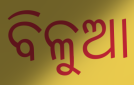
ବିଳୁଆ